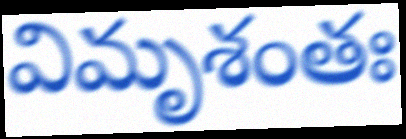
విమృశంతః